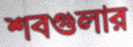
শবগুলার